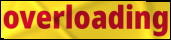
overloading